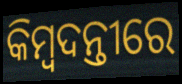
କିମ୍ବଦନ୍ତୀରେ